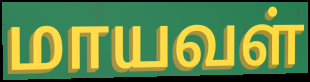
மாயவள்